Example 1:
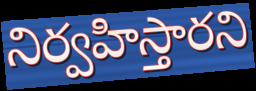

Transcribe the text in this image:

నిర్వహిస్తారని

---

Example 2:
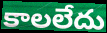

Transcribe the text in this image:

కాలలేదు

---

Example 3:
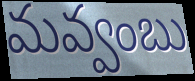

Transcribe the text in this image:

మవ్వంబు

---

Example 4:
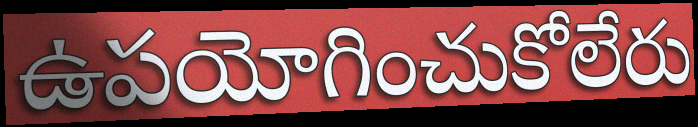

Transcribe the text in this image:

ఉపయోగించుకోలేరు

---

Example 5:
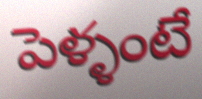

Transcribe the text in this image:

పెళ్ళంటే